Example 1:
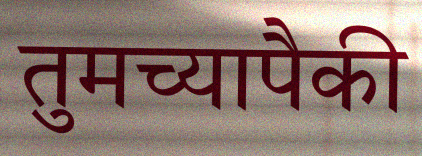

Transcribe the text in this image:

तुमच्यापैकी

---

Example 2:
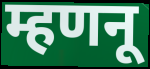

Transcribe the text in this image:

म्हणनू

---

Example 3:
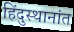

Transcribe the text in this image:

हिंदुस्थानांत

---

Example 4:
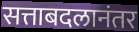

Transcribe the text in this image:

सत्ताबदलानंतर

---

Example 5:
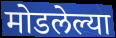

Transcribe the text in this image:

मोडलेल्या